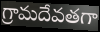
గ్రామదేవతగా